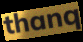
thanq